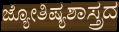
ಜ್ಯೋತಿಷ್ಯಶಾಸ್ತ್ರದ